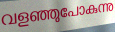
വളഞ്ഞുപോകുന്നു